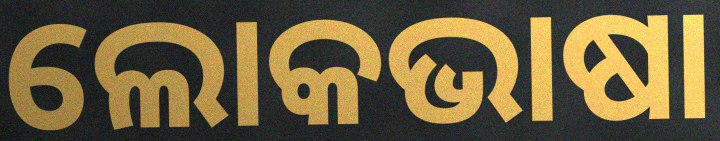
ଲୋକଭାଷା